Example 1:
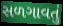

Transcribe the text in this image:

સળગાવતું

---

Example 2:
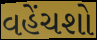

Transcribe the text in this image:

વહેંચશો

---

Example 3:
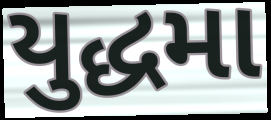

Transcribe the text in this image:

યુદ્ધમા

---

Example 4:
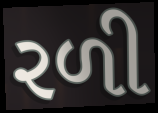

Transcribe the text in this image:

રળી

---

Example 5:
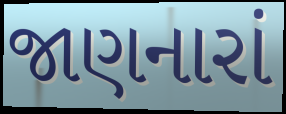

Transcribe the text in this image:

જાણનારાં